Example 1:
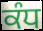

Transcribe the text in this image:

ਕੰਧ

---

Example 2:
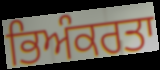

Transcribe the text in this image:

ਭਿਅੰਕਰਤਾ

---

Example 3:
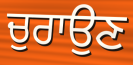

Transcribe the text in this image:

ਚੁਰਾਉਣ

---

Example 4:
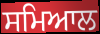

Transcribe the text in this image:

ਸਮਿਆਲ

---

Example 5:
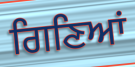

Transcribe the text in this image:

ਗਿਣਿਆਂ